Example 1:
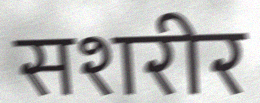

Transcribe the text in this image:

सशरीर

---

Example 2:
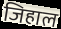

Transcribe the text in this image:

जिहाल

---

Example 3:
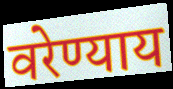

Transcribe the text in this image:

वरेण्याय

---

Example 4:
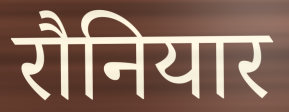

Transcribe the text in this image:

रौनियार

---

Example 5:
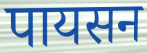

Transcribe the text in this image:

पायसन